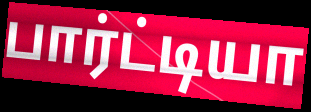
பார்ட்டியா